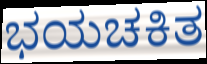
ಭಯಚಕಿತ